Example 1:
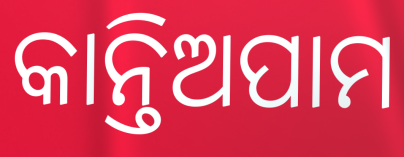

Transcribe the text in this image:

କାନ୍ତିଅପାମ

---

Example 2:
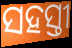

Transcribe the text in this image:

ସହସ୍ତୀ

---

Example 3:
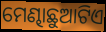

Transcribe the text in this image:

ମେଣ୍ଢାଛୁଆଟିଏ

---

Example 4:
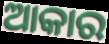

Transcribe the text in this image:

ଆକାର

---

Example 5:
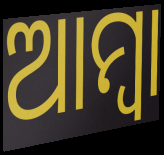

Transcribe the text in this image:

ଆମ୍ବା